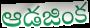
ఆడజింక